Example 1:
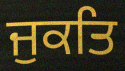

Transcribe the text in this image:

ਜੁਕਤਿ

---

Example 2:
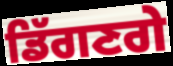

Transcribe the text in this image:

ਡਿੱਗਣਗੇ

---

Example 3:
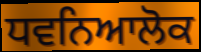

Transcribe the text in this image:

ਧਵਨਿਆਲੋਕ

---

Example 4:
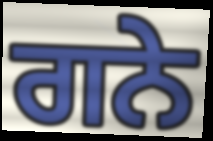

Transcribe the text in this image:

ਗਨੇ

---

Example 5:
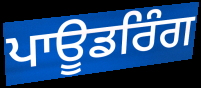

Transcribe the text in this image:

ਪਾਊਡਰਿੰਗ